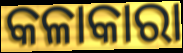
କଳାକାରା